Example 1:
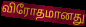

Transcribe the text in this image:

விரோதமானது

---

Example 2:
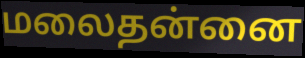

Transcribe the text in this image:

மலைதன்னை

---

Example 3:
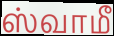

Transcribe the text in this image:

ஸ்வாமீ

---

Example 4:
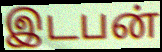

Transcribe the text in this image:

இடபன்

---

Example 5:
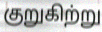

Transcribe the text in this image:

குறுகிற்று